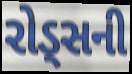
રોડ્સની